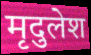
मृदुलेश